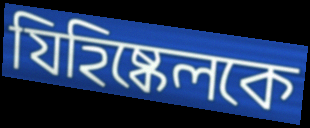
যিহিষ্কেলকে